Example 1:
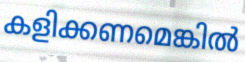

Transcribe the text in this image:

കളിക്കണമെങ്കിൽ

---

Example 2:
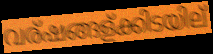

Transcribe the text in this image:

വര്ഷങ്ങള്ക്കിടയില്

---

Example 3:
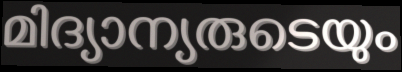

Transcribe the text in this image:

മിദ്യാന്യരുടെയും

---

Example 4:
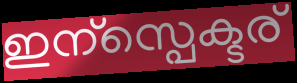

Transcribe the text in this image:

ഇന്സ്പെക്ടര്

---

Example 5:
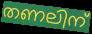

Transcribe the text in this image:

തണലിന്